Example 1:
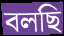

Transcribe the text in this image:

বলছি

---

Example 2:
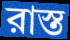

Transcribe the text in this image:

রাস্ত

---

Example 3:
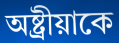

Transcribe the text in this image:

অষ্ট্রীয়াকে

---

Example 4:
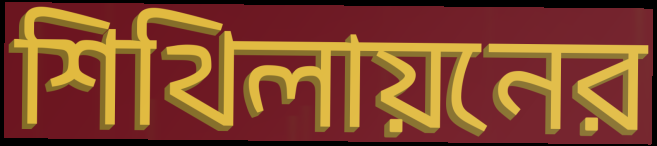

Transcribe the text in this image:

শিথিলায়নের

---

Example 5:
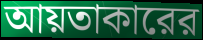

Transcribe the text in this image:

আয়তাকারের